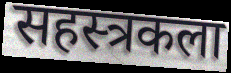
सहस्त्रकला